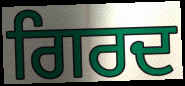
ਗਿਰਦ